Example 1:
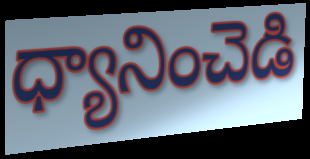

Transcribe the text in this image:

ధ్యానించెడి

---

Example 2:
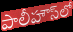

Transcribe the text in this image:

పాలీహౌస్‌లో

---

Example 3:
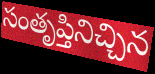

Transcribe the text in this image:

సంతృప్తినిచ్చిన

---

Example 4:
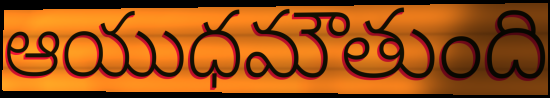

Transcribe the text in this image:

ఆయుధమౌతుంది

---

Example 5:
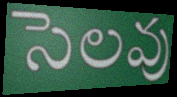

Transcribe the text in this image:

సెలవు